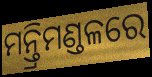
ମନ୍ତ୍ରିମଣ୍ଡଳରେ